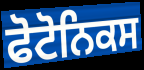
ਫੋਟੋਨਿਕਸ